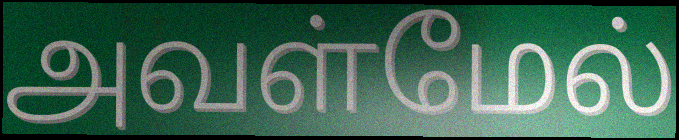
அவள்மேல்